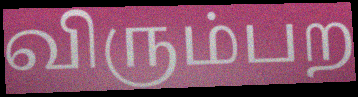
விரும்பற